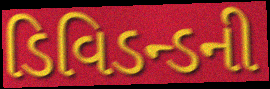
ડિવિડન્ડની